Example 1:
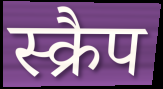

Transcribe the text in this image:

स्क्रैप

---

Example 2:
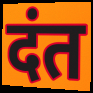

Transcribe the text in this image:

दंत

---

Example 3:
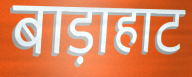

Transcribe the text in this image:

बाड़ाहाट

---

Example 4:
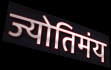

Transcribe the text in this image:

ज्योतिमंय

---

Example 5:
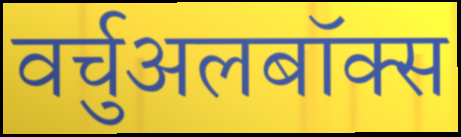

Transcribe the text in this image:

वर्चुअलबॉक्स